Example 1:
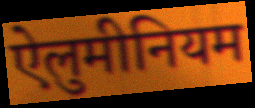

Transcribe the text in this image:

ऐलुमीनियम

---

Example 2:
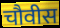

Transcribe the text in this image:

चौवीस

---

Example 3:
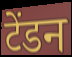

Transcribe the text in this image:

टेंडन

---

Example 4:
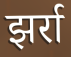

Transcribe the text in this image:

झर्रा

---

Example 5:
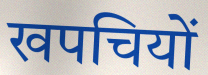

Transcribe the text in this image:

खपचियों